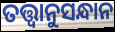
ତତ୍ତ୍ବାନୁସନ୍ଧାନ